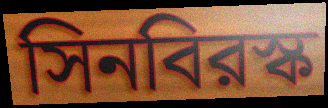
সিনবিরস্ক